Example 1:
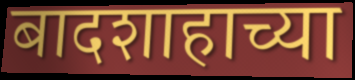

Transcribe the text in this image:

बादशाहाच्या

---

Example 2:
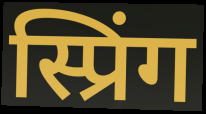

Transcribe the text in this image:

स्प्रिंग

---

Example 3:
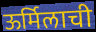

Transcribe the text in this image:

ऊर्मिलाची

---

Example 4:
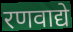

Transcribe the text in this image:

रणवाद्ये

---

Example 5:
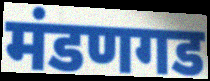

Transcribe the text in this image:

मंडणगड